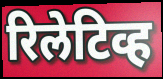
रिलेटिव्ह